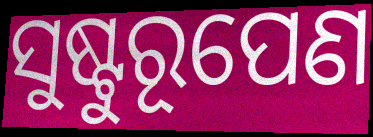
ସୁଷ୍ଟୁରୂପେଣ